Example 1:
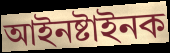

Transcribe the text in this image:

আইনষ্টাইনক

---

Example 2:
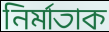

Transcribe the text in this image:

নিৰ্মাতাক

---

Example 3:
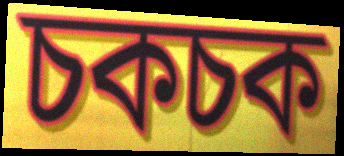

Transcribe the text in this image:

চকচক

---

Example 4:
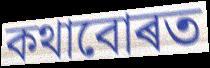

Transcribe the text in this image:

কথাবোৰত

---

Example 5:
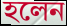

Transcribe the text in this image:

হলেন